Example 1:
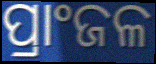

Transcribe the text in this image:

ପ୍ରାଂଜଳ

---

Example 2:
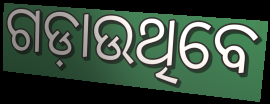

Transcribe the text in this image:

ଗଡ଼ାଉଥିବେ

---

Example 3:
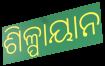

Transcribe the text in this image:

ଶିଳ୍ପାୟାନ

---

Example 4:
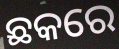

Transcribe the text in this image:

ଛକରେ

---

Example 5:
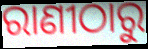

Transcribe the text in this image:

ରାଣୀଠାରୁ